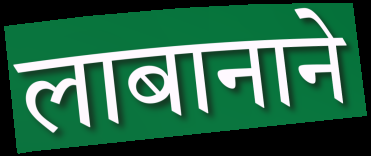
लाबानाने